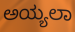
ಅಯ್ಯಲಾ